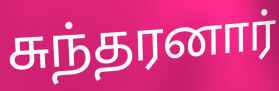
சுந்தரனார்